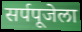
सर्पपूजेला